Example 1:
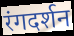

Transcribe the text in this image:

रंगदर्शन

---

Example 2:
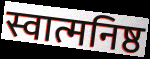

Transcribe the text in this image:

स्वात्मनिष्ठ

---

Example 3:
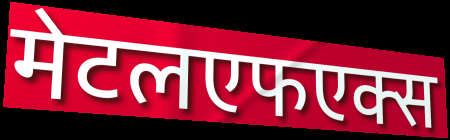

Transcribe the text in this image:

मेटलएफएक्स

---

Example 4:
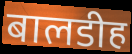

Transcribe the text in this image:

बालडीह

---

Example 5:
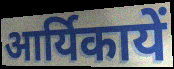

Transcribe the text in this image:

आर्यिकायें